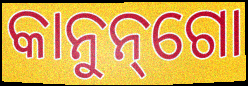
କାନୁନ୍‌ଗୋ